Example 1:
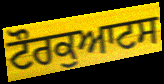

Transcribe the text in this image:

ਟੌਰਕੁਆਟਸ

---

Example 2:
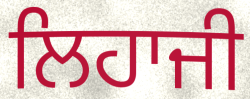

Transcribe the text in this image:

ਲਿਹਾਜੀ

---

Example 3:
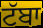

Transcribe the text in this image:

ਟੱਬਾ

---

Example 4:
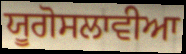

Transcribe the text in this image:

ਯੂਗੋਸਲਾਵੀਆ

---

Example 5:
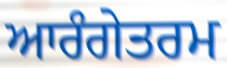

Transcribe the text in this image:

ਆਰੰਗੇਤਰਮ